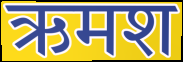
ऋमश